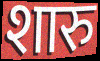
शारु